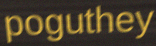
poguthey